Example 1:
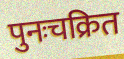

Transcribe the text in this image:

पुनःचक्रित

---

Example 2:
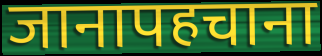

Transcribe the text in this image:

जानापहचाना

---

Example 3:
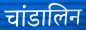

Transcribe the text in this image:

चांडालिन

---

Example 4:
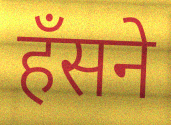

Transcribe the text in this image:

हँसने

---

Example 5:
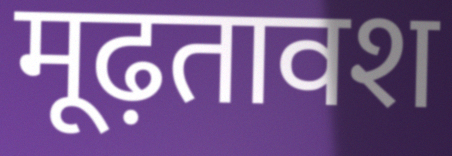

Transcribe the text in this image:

मूढ़तावश